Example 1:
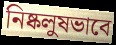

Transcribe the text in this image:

নিষ্কলুষভাবে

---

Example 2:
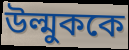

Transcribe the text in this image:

উল্মুককে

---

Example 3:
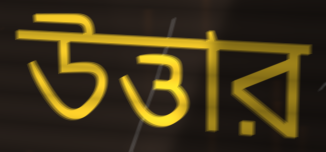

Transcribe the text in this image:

উত্তার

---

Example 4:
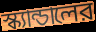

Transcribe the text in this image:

স্ক্যান্ডালের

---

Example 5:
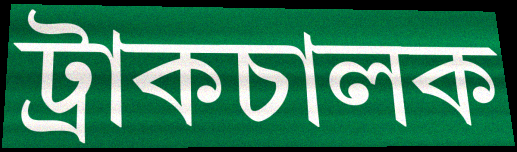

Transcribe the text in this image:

ট্রাকচালক